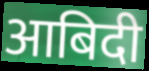
आबिदी